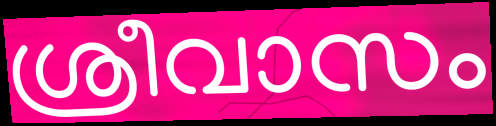
ശ്രീവാസം